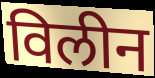
विलीन